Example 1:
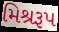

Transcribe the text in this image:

મિશ્રરૂપ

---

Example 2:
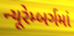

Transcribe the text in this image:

ન્યૂરેમ્બર્ગમાં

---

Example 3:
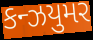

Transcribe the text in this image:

કન્ઝયુમર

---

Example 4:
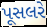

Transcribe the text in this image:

પૂસલરે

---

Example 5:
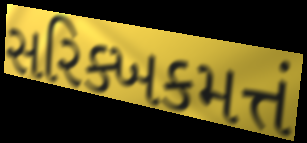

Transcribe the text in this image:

સરિક્ખકમત્તં